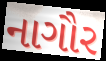
નાગૌર